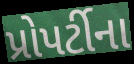
પ્રોપર્ટીના